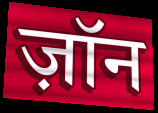
ज़ॉन